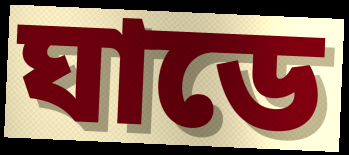
ঘাডে